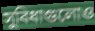
সুবিধাগুলোও